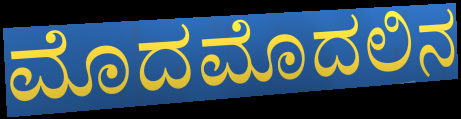
ಮೊದಮೊದಲಿನ